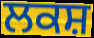
ਲਕਸ਼